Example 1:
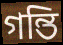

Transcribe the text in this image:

গন্তি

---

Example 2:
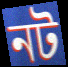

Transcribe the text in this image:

নট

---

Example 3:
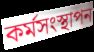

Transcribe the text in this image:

কৰ্মসংস্থাপন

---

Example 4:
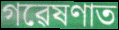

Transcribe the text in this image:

গৱেষণাত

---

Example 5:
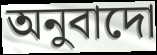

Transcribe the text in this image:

অনুবাদো